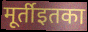
मूर्तीइतका